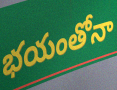
భయంతోనా